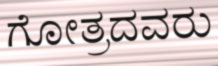
ಗೋತ್ರದವರು